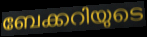
ബേക്കറിയുടെ